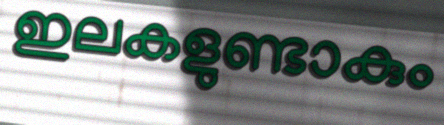
ഇലകളുണ്ടാകും